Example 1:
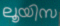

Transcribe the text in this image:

ലൂയിസ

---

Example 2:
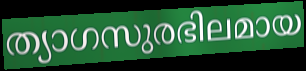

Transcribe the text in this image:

ത്യാഗസുരഭിലമായ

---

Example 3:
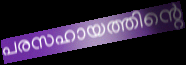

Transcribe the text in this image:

പരസഹായത്തിന്റെ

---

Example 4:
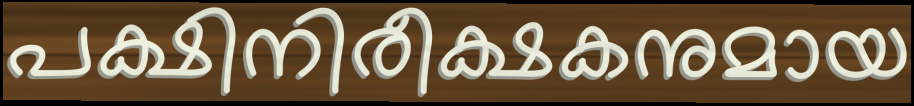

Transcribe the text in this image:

പക്ഷിനിരീക്ഷകനുമായ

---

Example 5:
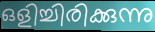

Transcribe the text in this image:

ഒളിച്ചിരിക്കുന്നു